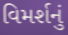
વિમર્શનું